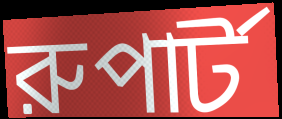
রুপার্ট